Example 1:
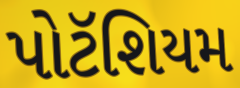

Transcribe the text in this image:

પોટૅશિયમ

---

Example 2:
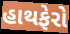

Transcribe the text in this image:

હાથફેરો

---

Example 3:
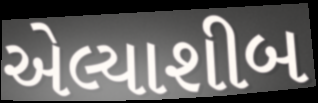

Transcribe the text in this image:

એલ્યાશીબ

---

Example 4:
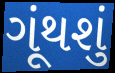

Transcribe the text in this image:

ગૂંથશું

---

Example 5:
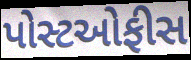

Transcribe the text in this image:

પોસ્ટઓફીસ